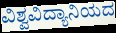
ವಿಶ್ವವಿದ್ಯಾನಿಯದ